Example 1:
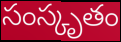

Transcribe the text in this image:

సంస్కృతం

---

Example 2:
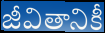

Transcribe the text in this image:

జీవితానికీ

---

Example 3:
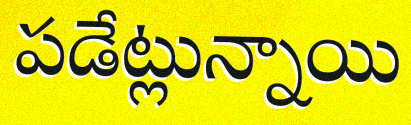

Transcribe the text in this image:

పడేట్లున్నాయి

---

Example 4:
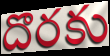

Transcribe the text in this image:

దొరకు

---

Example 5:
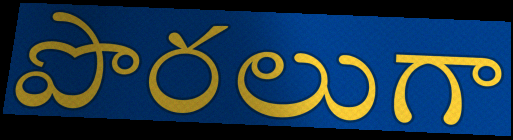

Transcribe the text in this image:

పొరలుగా